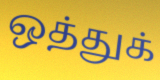
ஒத்துக்